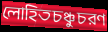
লোহিতচঞ্চুচরণ